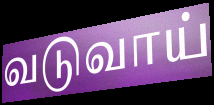
வடுவாய்